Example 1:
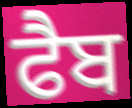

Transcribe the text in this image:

ਫੈਬ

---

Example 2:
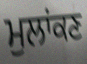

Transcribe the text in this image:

ਮੁਲਾਂਕਣ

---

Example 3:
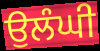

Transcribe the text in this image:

ਉਲੰਘੀ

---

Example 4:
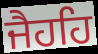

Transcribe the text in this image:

ਜੈਹਹਿ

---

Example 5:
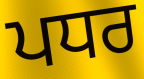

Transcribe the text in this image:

ਪਧਰ